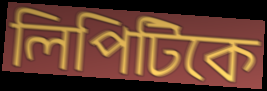
লিপিটিকে